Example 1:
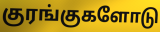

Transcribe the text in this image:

குரங்குகளோடு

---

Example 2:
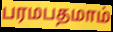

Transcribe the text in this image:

பரமபதமாம்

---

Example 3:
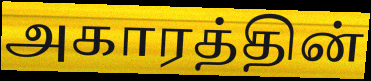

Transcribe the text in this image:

அகாரத்தின்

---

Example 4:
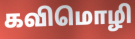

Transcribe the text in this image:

கவிமொழி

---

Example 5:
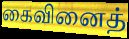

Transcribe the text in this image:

கைவினைத்